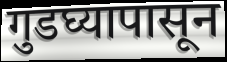
गुडघ्यापासून